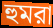
হুমরা